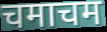
चमाचम